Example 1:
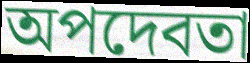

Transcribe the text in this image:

অপদেবতা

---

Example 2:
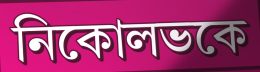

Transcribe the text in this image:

নিকোলভকে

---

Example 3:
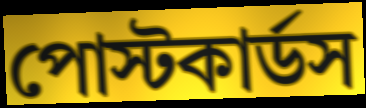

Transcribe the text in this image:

পোস্টকার্ডস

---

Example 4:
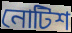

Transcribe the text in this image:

নোটিশ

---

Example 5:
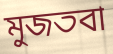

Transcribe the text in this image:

মুজতবা